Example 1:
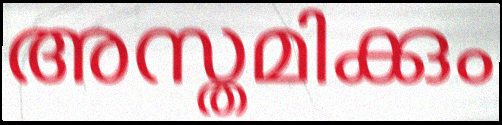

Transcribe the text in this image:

അസ്തമിക്കും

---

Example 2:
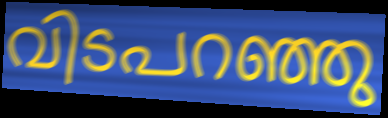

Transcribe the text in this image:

വിടപറഞ്ഞു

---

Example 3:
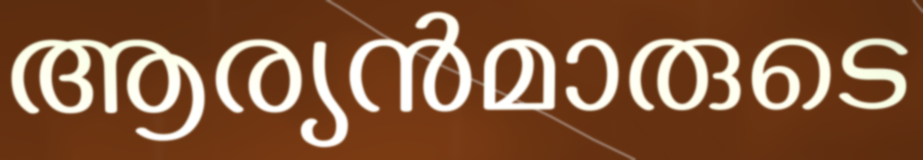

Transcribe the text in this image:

ആര്യൻമാരുടെ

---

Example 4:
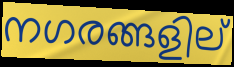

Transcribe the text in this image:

നഗരങ്ങളില്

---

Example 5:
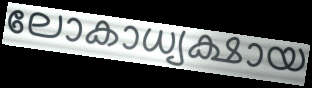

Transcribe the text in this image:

ലോകാധ്യക്ഷായ